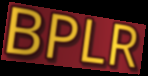
BPLR